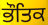
ਭੌਤਿਕ